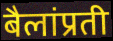
बैलांप्रती